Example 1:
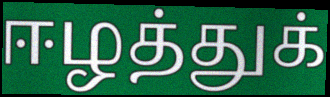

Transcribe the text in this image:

ஈழத்துக்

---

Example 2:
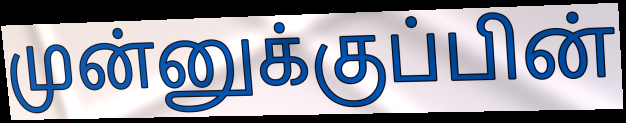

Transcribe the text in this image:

முன்னுக்குப்பின்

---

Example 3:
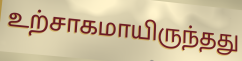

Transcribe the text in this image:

உற்சாகமாயிருந்தது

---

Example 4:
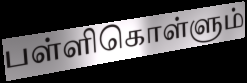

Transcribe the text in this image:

பள்ளிகொள்ளும்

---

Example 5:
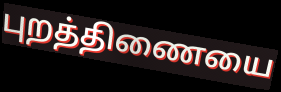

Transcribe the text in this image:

புறத்திணையை